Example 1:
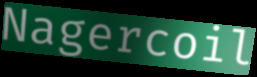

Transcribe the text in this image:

Nagercoil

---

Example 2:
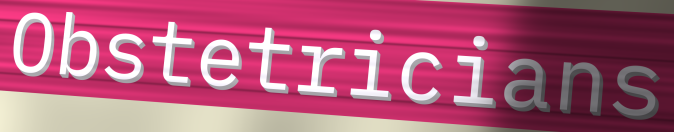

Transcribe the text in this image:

Obstetricians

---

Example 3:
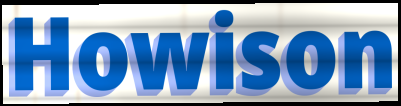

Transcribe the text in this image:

Howison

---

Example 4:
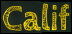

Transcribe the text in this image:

Calif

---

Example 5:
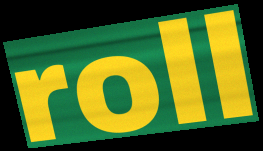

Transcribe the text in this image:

roll